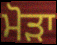
ਮੋੜਾ